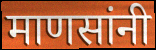
माणसांनी